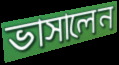
ভাসালেন